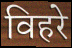
विहरे